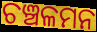
ଚଞ୍ଚଳମନ